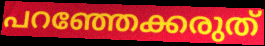
പറഞ്ഞേക്കരുത്